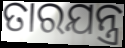
ତାରଯନ୍ତ୍ର